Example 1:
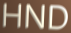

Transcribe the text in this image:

HND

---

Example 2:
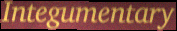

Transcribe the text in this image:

Integumentary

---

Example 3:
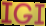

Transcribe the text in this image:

IGI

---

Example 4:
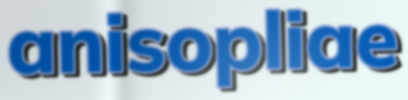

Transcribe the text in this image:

anisopliae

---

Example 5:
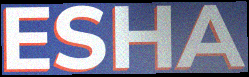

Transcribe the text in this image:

ESHA